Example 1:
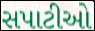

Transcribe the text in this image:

સપાટીઓ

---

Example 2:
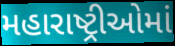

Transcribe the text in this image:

મહારાષ્ટ્રીઓમાં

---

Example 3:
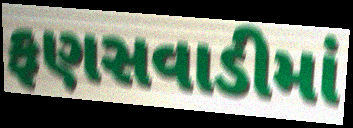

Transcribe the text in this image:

ફણસવાડીમાં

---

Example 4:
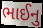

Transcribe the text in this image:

ભાઈનુ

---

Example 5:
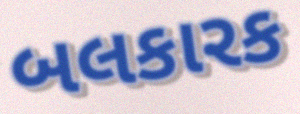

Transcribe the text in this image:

બલકારક